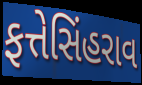
ફત્તેસિંહરાવ